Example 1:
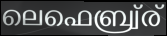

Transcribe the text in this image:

ലെഫെബ്ര്വ്ര്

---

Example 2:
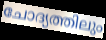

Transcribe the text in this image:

ചോദ്യത്തിലും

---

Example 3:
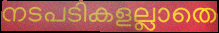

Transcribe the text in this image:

നടപടികളല്ലാതെ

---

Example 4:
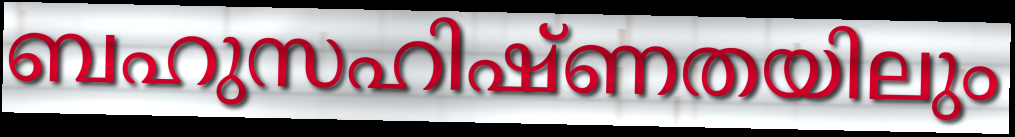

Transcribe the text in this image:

ബഹുസഹിഷ്ണതയിലും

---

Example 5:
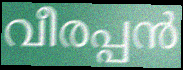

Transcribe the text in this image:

വീരപ്പൻ